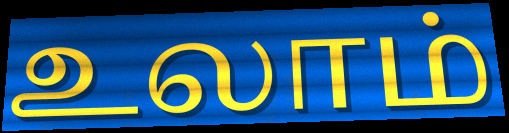
உலாம்